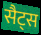
सैट्स